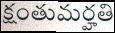
క్షంతుమర్హతి